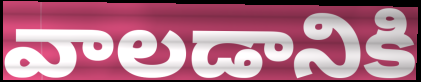
వాలడానికి